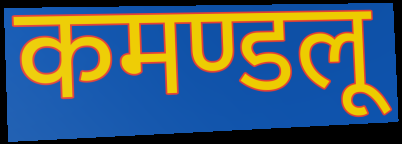
कमण्डलू